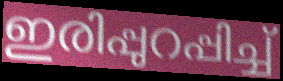
ഇരിപ്പുറപ്പിച്ച്